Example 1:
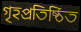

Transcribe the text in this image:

গৃহপ্রতিষ্ঠিত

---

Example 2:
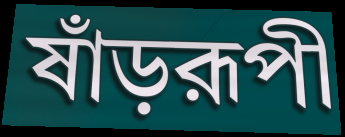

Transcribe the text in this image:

ষাঁড়রূপী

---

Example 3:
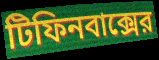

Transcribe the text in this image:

টিফিনবাক্সের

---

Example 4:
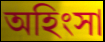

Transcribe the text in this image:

অহিংসা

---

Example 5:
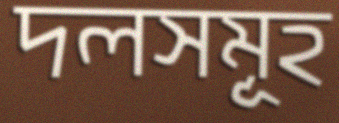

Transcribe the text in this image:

দলসমূহ